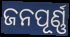
ଜନପୂର୍ଣ୍ଣ